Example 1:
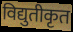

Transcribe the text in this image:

विद्युतीकृत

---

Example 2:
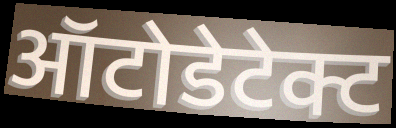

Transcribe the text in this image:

ऑटोडेटेक्ट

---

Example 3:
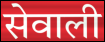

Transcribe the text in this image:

सेवाली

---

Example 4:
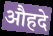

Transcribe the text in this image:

औहदे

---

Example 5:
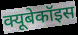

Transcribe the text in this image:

क्यूबेकॉइस